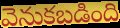
వెనుకబడింది